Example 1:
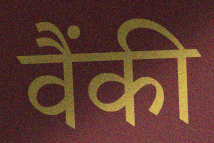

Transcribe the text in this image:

वैंकी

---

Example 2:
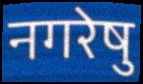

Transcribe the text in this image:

नगरेषु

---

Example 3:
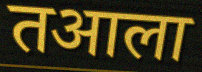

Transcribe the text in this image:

तआला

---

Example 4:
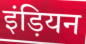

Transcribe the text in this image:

इंड़ियन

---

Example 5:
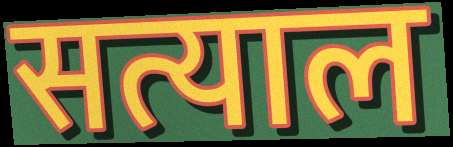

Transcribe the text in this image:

सत्याल